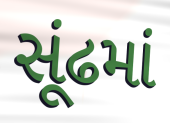
સૂંઢમાં